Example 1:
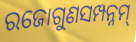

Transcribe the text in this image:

ରଜୋଗୁଣସମ୍ପନ୍ନମ୍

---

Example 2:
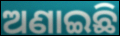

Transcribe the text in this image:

ଅଣାଇଛି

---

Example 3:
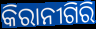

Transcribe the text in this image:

କିରାନୀଗିରି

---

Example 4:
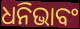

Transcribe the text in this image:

ଧନିଭାବଂ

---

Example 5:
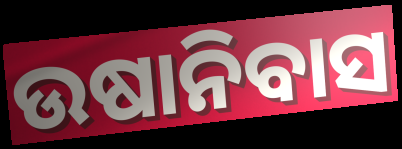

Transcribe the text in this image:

ଉଷାନିବାସ